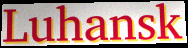
Luhansk